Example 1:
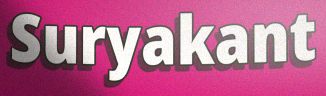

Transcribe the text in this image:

Suryakant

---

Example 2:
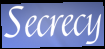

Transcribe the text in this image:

Secrecy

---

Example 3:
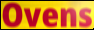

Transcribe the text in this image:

Ovens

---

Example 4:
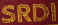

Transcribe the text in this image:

SRDI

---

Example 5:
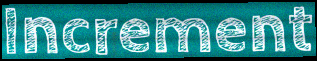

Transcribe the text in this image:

Increment